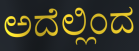
ಅದೆಲ್ಲಿಂದ